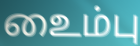
உைம்பு